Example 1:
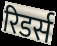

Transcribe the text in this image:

रिडर्स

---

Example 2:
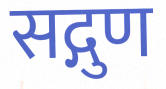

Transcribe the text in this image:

सद्गुण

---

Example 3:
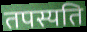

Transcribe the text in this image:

तपस्यति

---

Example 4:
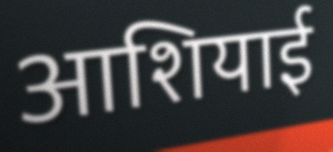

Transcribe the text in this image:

आशियाई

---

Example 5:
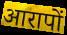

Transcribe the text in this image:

आरापों